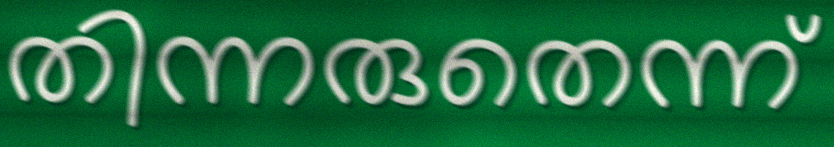
തിന്നരുതെന്ന്